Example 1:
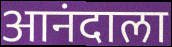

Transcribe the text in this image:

आनंदाला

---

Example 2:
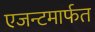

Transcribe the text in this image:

एजन्टमार्फत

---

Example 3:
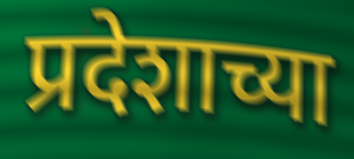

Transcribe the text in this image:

प्रदेशाच्या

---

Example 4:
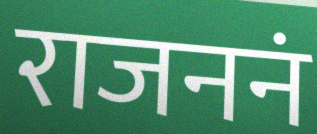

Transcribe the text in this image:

राजननं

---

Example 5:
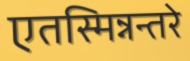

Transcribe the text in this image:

एतस्मिन्नन्तरे